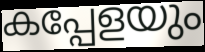
കപ്പേളയും